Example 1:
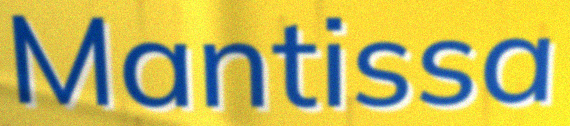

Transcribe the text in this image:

Mantissa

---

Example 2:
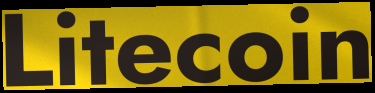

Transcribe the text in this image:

Litecoin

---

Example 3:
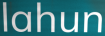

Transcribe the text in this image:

lahun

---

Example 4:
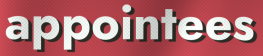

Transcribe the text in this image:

appointees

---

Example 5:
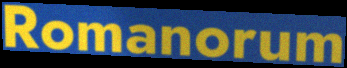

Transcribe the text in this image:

Romanorum